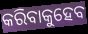
କରିବାକୁହେବ